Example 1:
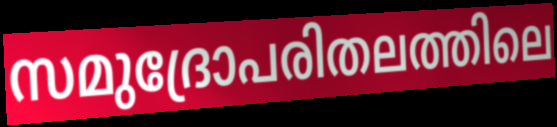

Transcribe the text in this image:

സമുദ്രോപരിതലത്തിലെ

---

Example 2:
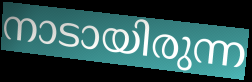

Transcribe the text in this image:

നാടായിരുന്ന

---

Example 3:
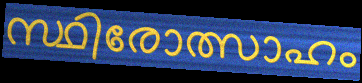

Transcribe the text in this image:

സ്ഥിരോത്സാഹം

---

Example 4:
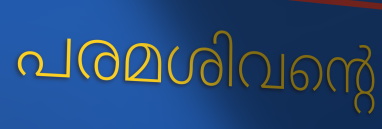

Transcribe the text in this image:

പരമശിവന്റെ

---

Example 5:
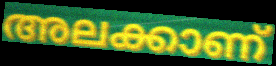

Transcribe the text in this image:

അലക്കാണ്